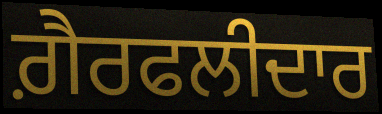
ਗ਼ੈਰਫਲੀਦਾਰ